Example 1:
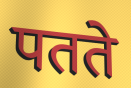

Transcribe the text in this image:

पतते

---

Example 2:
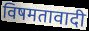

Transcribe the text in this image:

विषमतावादी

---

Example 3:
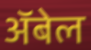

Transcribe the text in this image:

ॲबेल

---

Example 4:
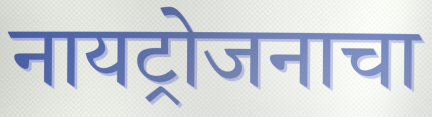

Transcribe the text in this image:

नायट्रोजनाचा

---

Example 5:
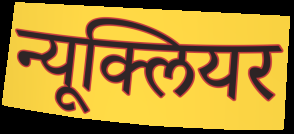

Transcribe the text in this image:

न्यूक्लियर